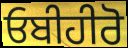
ਓਬੀਹੀਰੋ